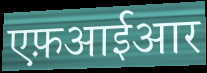
एफ़आईआर